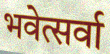
भवेत्सर्वा